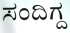
ಸಂದಿಗ್ದ